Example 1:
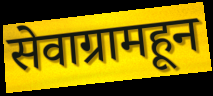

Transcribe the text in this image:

सेवाग्रामहून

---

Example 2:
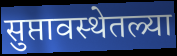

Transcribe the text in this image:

सुप्तावस्थेतल्या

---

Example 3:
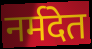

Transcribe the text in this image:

नर्मदेत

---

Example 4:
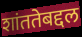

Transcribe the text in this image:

शांततेबद्दल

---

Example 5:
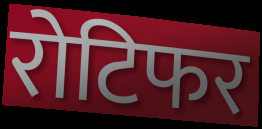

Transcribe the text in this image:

रोटिफर